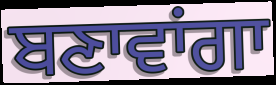
ਬਣਾਵਾਂਗਾ